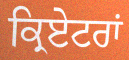
ਕ੍ਰਿਏਟਰਾਂ